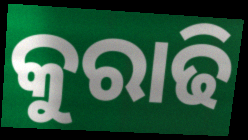
କୁରାଢି